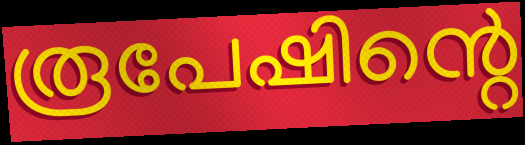
രൂപേഷിന്റെ